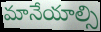
మానేయాల్సి